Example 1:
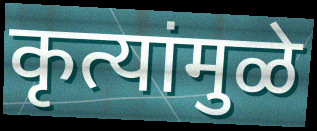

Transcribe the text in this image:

कृत्यांमुळे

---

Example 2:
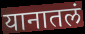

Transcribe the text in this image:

यानातलं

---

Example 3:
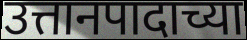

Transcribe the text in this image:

उत्तानपादाच्या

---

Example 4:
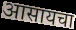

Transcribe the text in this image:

आसायचा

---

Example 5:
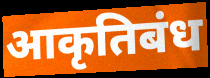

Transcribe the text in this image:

आकृतिबंध